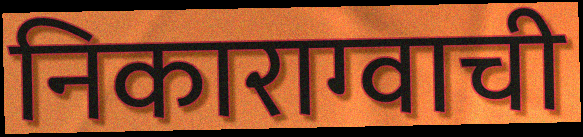
निकाराग्वाची